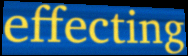
effecting